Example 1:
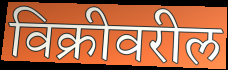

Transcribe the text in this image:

विक्रीवरील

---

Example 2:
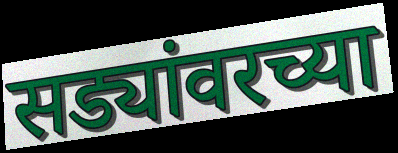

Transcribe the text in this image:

सड्यांवरच्या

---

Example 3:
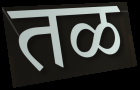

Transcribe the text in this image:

तळ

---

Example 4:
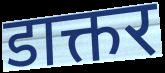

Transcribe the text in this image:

डाक्तर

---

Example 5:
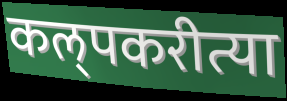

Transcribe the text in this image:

कल्पकरीत्या